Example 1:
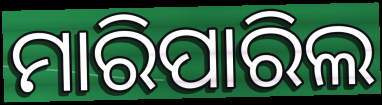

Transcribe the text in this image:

ମାରିପାରିଲ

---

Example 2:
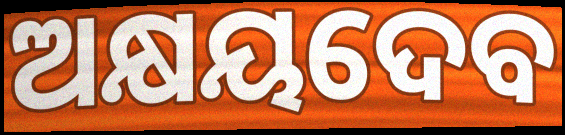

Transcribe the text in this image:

ଅକ୍ଷୟଦେବ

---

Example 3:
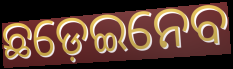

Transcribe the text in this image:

ଛଡ଼େଇନେବ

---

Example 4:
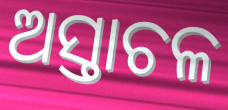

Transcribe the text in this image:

ଅସ୍ତାଚଳ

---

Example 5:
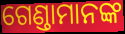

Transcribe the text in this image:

ଗେଣ୍ଡାମାନଙ୍କ